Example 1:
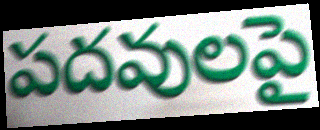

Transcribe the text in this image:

పదవులపై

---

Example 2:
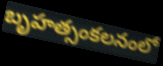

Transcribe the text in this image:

బృహత్సంకలనంలో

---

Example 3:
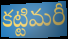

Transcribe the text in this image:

కట్టిమరీ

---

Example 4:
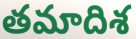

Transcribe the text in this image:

తమాదిశ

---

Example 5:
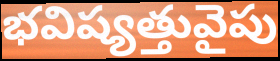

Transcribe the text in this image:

భవిష్యత్తువైపు